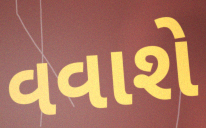
વવાશે